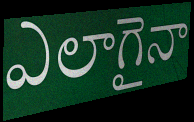
ఎలాగైనా